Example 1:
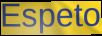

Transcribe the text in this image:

Espeto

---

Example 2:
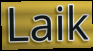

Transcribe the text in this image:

Laik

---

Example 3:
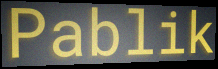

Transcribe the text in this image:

Pablik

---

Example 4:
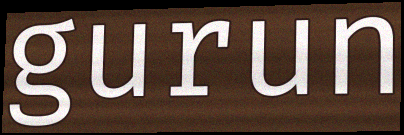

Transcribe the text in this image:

gurun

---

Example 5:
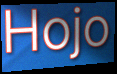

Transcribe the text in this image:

Hojo